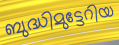
ബുദ്ധിമുട്ടേറിയ